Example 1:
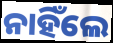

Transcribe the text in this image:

ନାହିଁଲେ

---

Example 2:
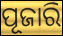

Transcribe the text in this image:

ପୂଜାରି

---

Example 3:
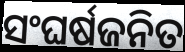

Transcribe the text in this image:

ସଂଘର୍ଷଜନିତ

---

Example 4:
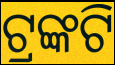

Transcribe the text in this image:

ଟ୍ରଙ୍କଟି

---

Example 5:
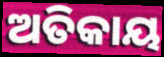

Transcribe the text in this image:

ଅତିକାୟ